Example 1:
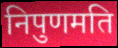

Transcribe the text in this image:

निपुणमति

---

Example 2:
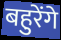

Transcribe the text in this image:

बहुरेंगे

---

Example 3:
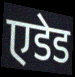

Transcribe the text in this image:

एडेड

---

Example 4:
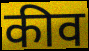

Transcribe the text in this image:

कीव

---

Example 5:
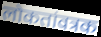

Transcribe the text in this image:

लोकतांवत्रक